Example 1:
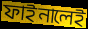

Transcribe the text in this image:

ফাইনালেই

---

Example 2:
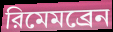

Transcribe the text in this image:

রিমেমব্রেন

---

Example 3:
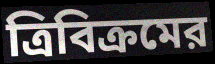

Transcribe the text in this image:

ত্রিবিক্রমের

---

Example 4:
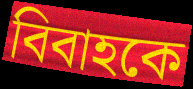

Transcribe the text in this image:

বিবাহকে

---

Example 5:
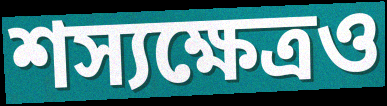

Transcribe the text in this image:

শস্যক্ষেত্রও